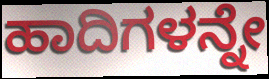
ಹಾದಿಗಳನ್ನೇ